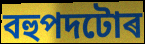
বহুপদটোৰ